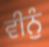
ਵੀਨੁੰ